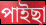
পাইছা